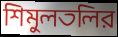
শিমুলতলির